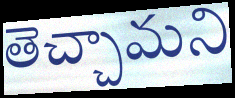
తెచ్చామని